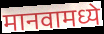
मानवामध्ये